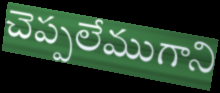
చెప్పలేముగాని